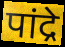
पांद्रे